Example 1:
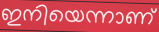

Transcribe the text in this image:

ഇനിയെന്നാണ്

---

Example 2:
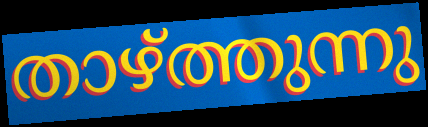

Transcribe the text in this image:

താഴ്ത്തുന്നു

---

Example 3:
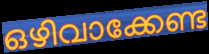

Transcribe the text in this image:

ഒഴിവാക്കേണ്ട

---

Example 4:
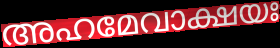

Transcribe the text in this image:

അഹമേവാക്ഷയഃ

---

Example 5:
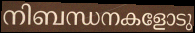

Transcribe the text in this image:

നിബന്ധനകളോടു